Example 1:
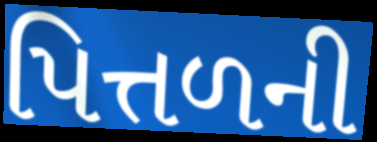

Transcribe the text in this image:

પિત્તળની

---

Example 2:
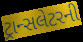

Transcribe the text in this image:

ટ્રાન્સલેટરની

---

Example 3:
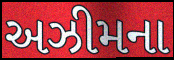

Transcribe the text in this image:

અઝીમના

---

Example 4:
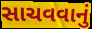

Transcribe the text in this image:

સાચવવાનું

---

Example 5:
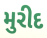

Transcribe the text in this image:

મુરીદ